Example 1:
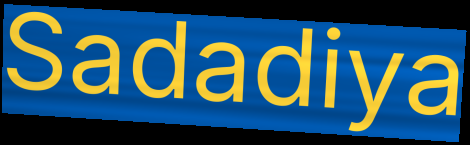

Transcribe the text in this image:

Sadadiya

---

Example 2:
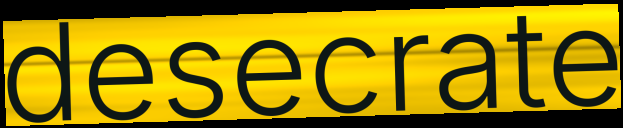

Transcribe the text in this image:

desecrate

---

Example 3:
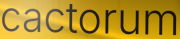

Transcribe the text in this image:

cactorum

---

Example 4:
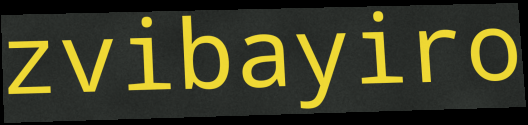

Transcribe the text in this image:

zvibayiro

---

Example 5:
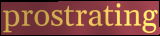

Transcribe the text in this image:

prostrating